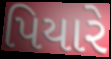
પિયારે